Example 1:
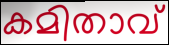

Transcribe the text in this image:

കമിതാവ്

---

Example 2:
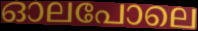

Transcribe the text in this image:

ഓലപോലെ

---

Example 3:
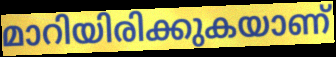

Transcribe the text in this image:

മാറിയിരിക്കുകയാണ്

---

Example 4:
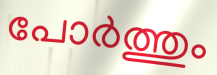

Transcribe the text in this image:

പോർത്തും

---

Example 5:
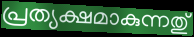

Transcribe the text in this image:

പ്രത്യക്ഷമാകുന്നതു്